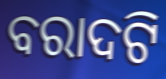
ବରାଦଟି